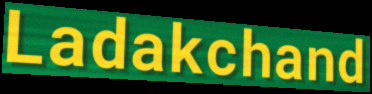
Ladakchand